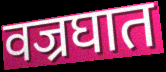
वज्रघात